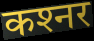
कश्‍नर